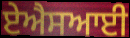
ਏਐਸਆਈ